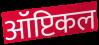
ऑप्टिकल